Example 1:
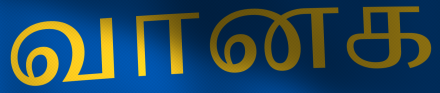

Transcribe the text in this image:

வானக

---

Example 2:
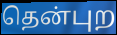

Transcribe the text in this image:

தென்புற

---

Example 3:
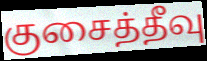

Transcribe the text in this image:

குசைத்தீவு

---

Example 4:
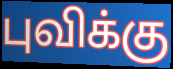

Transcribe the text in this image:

புவிக்கு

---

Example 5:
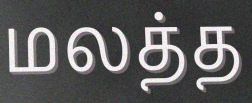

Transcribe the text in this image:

மலத்த